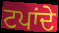
ਟਪਾਂਦੇ